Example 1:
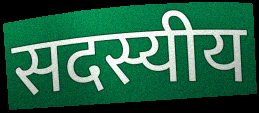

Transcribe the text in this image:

सदस्यीय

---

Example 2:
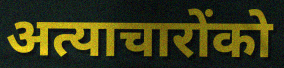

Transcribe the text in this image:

अत्याचारोंको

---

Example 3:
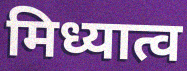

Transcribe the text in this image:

मिध्यात्व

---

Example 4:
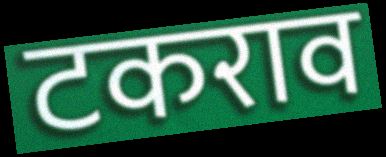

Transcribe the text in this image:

टकराव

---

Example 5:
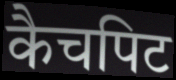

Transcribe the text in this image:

कैचपिट